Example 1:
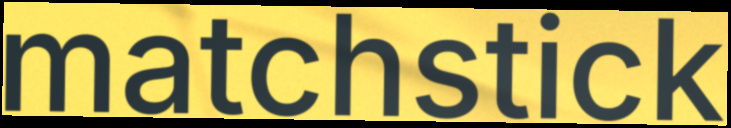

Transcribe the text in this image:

matchstick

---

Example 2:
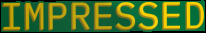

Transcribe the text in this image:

IMPRESSED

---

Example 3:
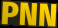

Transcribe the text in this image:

PNN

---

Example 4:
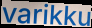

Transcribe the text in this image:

varikku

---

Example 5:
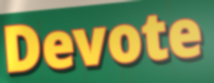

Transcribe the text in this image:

Devote